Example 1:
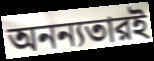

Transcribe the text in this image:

অনন্যতারই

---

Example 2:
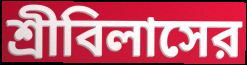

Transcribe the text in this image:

শ্রীবিলাসের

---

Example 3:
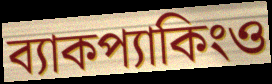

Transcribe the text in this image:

ব্যাকপ্যাকিংও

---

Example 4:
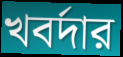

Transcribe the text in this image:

খবর্দার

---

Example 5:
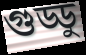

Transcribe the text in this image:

গুড্ডু